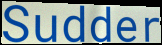
Sudder